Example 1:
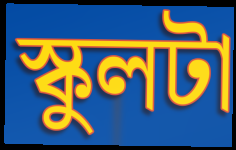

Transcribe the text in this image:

স্কুলটা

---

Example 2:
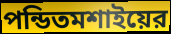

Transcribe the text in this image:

পন্ডিতমশাইয়ের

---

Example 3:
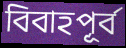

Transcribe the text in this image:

বিবাহপূর্ব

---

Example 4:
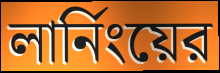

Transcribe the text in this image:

লার্নিংয়ের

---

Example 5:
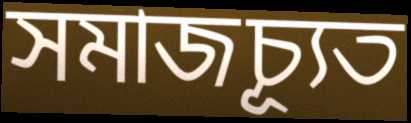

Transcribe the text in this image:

সমাজচ্যূত